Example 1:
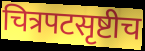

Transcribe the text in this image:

चित्रपटसृष्टीच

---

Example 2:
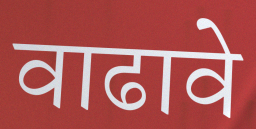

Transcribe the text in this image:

वाढावे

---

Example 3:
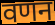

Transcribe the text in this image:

वणन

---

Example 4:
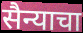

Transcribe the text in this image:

सैन्याचा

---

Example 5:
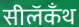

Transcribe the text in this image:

सीलॅकँथ